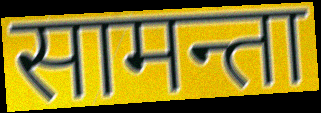
सामन्ता